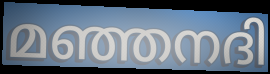
മഞ്ഞനദി